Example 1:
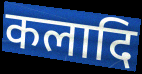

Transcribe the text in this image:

कलादि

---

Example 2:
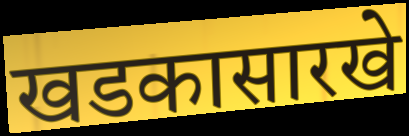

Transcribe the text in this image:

खडकासारखे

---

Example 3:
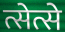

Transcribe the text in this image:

त्सेत्से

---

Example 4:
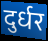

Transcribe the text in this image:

दुर्धर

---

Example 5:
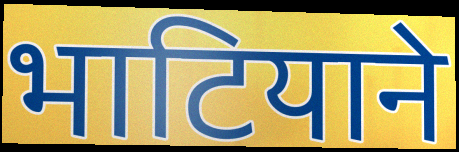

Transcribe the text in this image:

भाटियाने